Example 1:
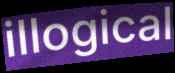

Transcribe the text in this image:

illogical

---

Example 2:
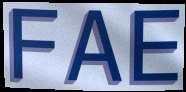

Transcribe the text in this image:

FAE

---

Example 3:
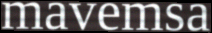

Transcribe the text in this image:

mavemsa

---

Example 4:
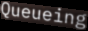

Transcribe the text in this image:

Queueing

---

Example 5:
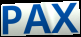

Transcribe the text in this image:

PAX